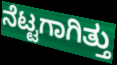
ನೆಟ್ಟಗಾಗಿತ್ತು